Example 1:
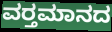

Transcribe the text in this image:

ವರ‍್ತಮಾನದ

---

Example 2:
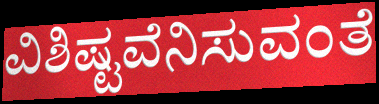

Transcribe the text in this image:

ವಿಶಿಷ್ಟವೆನಿಸುವಂತೆ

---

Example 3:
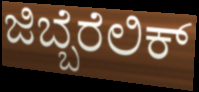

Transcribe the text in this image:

ಜಿಬ್ಬೆರೆಲಿಕ್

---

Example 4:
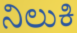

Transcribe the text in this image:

ನಿಲುಕಿ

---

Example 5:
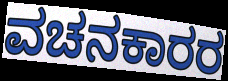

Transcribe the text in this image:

ವಚನಕಾರರ